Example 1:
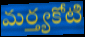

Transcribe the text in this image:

మర్త్యకోటి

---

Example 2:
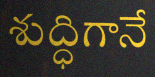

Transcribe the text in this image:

శుద్ధిగానే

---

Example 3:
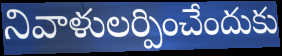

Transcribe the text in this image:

నివాళులర్పించేందుకు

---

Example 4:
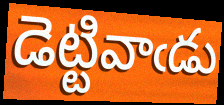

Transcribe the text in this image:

డెట్టివాఁడు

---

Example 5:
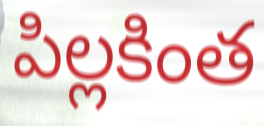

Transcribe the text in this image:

పిల్లకింత